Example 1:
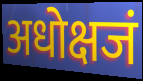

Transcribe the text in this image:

अधोक्षजं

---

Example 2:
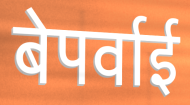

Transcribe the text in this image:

बेपर्वाई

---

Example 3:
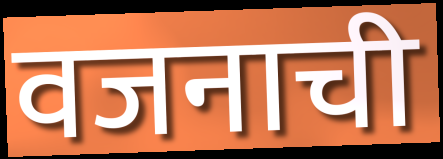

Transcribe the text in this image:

वजनाची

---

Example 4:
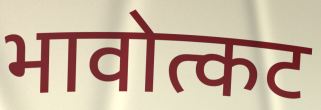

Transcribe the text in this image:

भावोत्कट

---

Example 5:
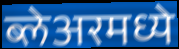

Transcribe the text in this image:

ब्लेअरमध्ये